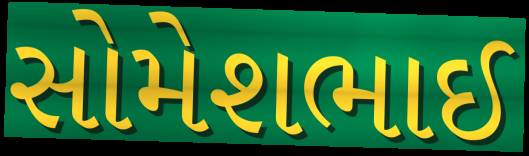
સોમેશભાઈ